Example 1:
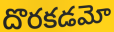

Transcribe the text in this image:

దొరకడమో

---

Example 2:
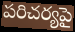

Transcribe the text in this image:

పరిచర్యపై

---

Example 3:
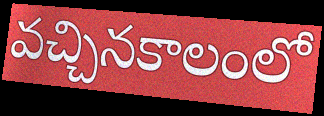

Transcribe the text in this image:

వచ్చినకాలంలో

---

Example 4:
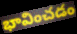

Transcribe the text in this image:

భావించడం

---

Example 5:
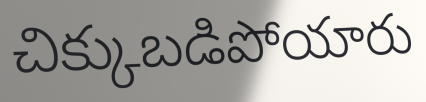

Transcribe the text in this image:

చిక్కుబడిపోయారు